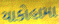
યાકોહામા